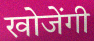
खोजेंगी